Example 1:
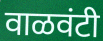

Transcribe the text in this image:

वाळवंटी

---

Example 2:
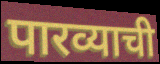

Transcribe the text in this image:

पारव्याची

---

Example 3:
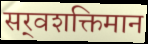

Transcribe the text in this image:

सर्वशक्तिमान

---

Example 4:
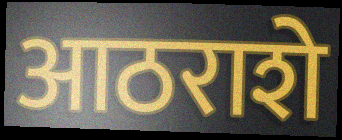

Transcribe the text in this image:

आठराशे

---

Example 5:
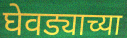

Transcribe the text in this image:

घेवड्याच्या